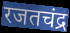
रजतचंद्र